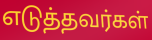
எடுத்தவர்கள்